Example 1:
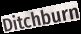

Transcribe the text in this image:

Ditchburn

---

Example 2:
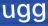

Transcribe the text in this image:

ugg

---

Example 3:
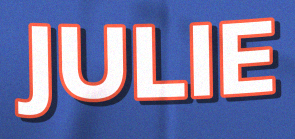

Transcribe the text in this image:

JULIE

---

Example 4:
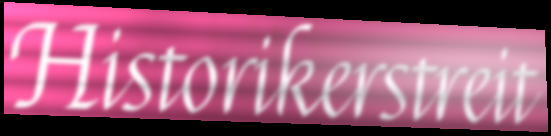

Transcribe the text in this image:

Historikerstreit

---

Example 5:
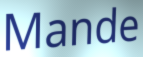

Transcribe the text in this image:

Mande